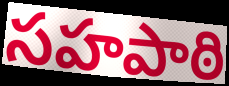
సహపాఠి